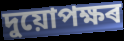
দুয়োপক্ষৰ